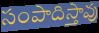
సంపాదిస్తావు